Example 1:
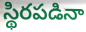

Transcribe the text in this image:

స్థిరపడినా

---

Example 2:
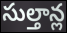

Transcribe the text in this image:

సుల్తాన్ల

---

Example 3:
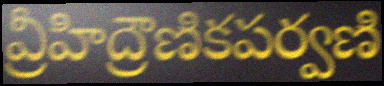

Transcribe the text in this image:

వ్రీహిద్రౌణికపర్వణి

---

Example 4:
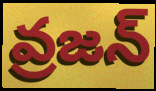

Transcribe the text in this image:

వ్రజన్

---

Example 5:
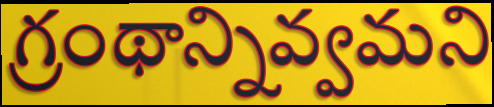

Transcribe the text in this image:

గ్రంథాన్నివ్వమని